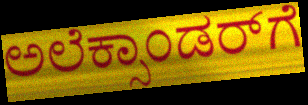
ಅಲೆಕ್ಸಾಂಡರ್‌ಗೆ